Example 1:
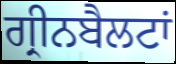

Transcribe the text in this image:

ਗ੍ਰੀਨਬੈਲਟਾਂ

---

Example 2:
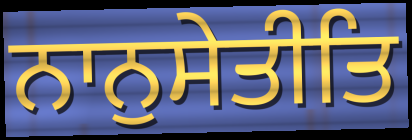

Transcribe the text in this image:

ਨਾਨੁਸੇਤੀਤਿ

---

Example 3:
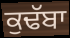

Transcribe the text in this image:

ਕੁਢੱਬਾ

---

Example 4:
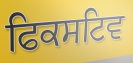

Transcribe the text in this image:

ਫਿਕਸਟਿਵ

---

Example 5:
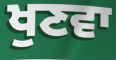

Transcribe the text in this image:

ਖੁਣਵਾ